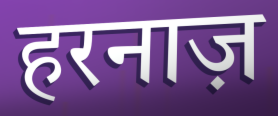
हरनाज़